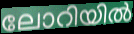
ലോറിയിൽ